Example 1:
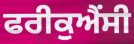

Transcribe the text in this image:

ਫਰੀਕੁਐਂਸੀ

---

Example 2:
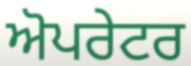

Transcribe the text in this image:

ਅੋਪਰੇਟਰ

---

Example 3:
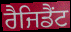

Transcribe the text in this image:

ਰੈਜਿਡੈਂਟ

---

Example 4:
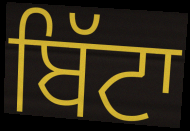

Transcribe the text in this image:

ਬਿੱਟਾ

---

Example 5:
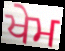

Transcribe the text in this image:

ਖੇਮ